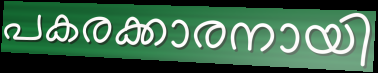
പകരക്കാരനായി